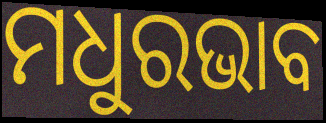
ମଧୁରଭାବ